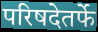
परिषदेतर्फे